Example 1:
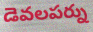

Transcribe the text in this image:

డెవలపర్ను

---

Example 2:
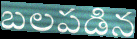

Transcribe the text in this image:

బలపడిన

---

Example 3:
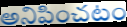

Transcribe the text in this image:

అనిపించటం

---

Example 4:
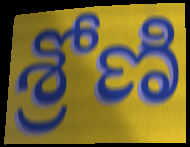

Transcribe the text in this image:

శ్రోణి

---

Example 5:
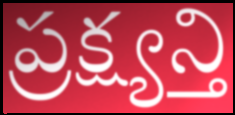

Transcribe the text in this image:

ప్రక్ష్యన్తి